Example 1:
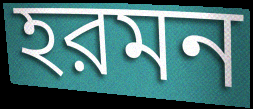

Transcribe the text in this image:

হরমন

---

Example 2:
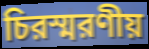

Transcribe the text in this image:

চিরস্মরণীয়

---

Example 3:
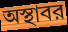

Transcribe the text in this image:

অস্থাবর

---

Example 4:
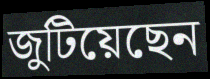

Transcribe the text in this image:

জুটিয়েছেন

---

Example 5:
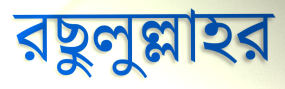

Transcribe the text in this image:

রছুলুল্লাহর